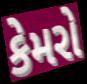
કેમરો